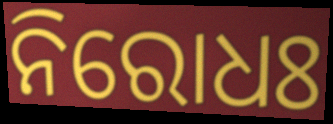
ନିରୋଧଃ